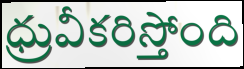
ధ్రువీకరిస్తోంది